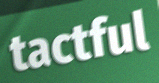
tactful